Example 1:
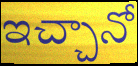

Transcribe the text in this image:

ఇచ్చానో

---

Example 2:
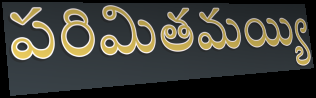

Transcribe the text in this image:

పరిమితమయ్యి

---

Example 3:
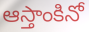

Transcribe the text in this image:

ఆస్తాంకినో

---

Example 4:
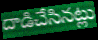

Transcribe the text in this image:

దాడిచేసినట్లు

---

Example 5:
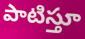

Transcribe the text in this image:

పాటిస్తూ